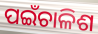
ପଇଁଚାଳିଶ